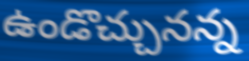
ఉండొచ్చునన్న